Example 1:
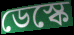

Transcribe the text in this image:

ডেস্কে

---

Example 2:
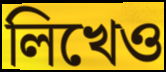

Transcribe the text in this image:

লিখেও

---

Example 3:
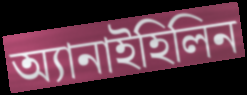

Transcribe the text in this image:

অ্যানাইহিলিন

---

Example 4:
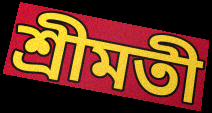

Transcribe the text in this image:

শ্রীমতী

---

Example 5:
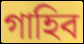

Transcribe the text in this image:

গাহিব